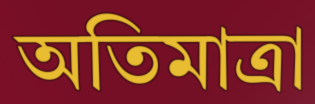
অতিমাত্ৰা